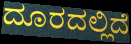
ದೂರದಲ್ಲಿದೆ